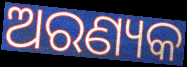
ଅରଣ୍ୟକ